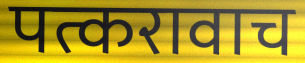
पत्करावाच